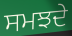
ਸਮਝਦੇ